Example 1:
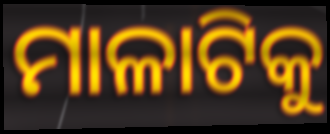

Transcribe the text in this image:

ମାଳାଟିକୁ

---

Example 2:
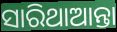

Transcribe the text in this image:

ସାରିଥାଆନ୍ତା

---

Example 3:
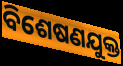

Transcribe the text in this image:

ବିଶେଷଣଯୁକ୍ତ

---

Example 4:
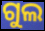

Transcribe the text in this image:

ଗୁଲ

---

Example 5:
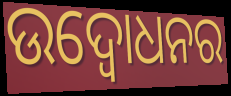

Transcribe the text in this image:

ଉଦ୍ବୋଧନର